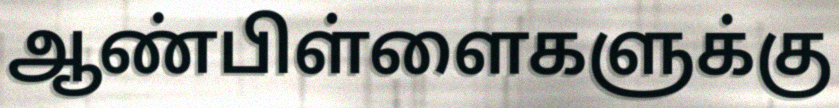
ஆண்பிள்ளைகளுக்கு